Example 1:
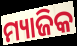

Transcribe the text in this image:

ମ୍ୟାଜିକ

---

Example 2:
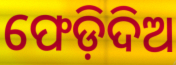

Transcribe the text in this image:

ଫେଡ଼ିଦିଅ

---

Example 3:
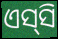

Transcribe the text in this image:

ଏସ୍‍ସି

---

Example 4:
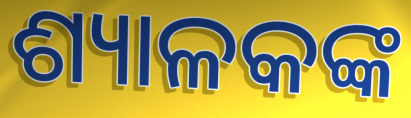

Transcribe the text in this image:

ଶ୍ୟାଳକଙ୍କ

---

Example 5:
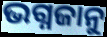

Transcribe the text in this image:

ଭଗ୍ନଜାନୁ